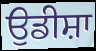
ਉਡੀਸ਼ਾ